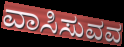
ವಾಸಿಸುವವ